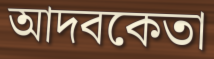
আদবকেতা